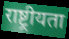
राष्ट्रीयता